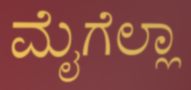
ಮೈಗೆಲ್ಲಾ